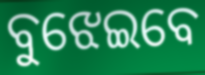
ବୁଝେଇବେ